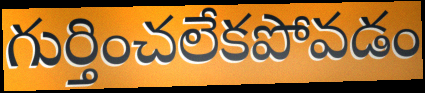
గుర్తించలేకపోవడం